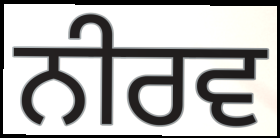
ਨੀਰਵ